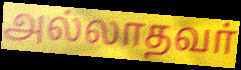
அல்லாதவர்